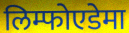
लिम्फोएडेमा